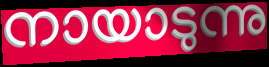
നായാടുന്നു